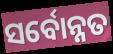
ସର୍ବୋନ୍ନତ